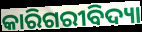
କାରିଗରୀବିଦ୍ୟା